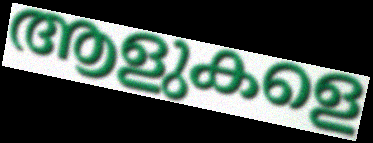
ആളുകളെ